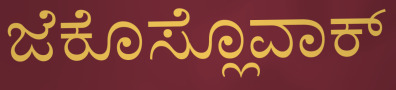
ಜೆಕೊಸ್ಲೊವಾಕ್